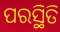
ପରସ୍ଥିତି